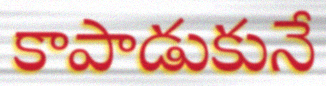
కాపాడుకునే